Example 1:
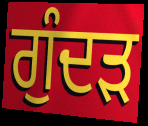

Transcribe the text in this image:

ਗੁੰਦੜ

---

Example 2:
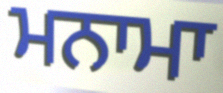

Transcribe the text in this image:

ਮਨਾਮਾ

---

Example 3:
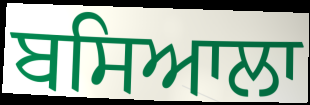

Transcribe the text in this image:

ਬਸਿਆਲਾ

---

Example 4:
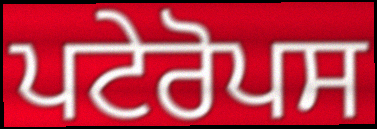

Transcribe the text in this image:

ਪਟੇਰੋਪਸ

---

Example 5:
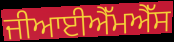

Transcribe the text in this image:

ਜੀਆਈਐੱਮਐੱਸ